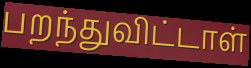
பறந்துவிட்டாள்